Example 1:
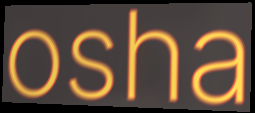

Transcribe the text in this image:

osha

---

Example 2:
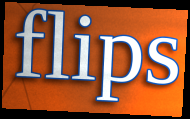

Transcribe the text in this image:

flips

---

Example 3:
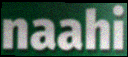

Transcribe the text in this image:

naahi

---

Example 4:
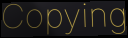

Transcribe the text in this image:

Copying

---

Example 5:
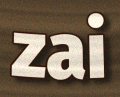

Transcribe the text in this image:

zai